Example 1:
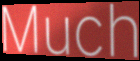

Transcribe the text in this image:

Much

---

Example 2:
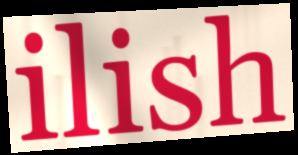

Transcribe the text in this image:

ilish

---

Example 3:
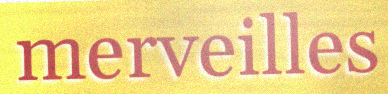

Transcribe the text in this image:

merveilles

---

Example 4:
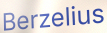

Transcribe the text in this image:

Berzelius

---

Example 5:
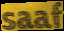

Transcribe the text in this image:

saaf